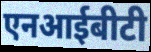
एनआईबीटी